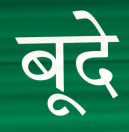
बूदे